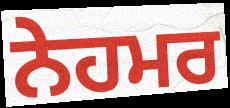
ਨੇਹਮਰ